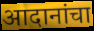
आदानांचा